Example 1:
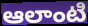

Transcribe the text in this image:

ఆలాంటి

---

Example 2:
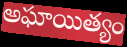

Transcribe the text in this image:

అఘాయిత్యం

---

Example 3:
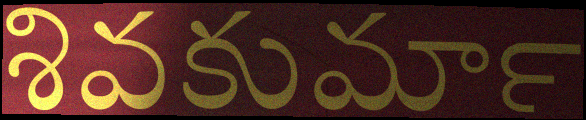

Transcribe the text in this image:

శివకుమార్‍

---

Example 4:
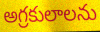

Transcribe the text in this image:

అగ్రకులాలను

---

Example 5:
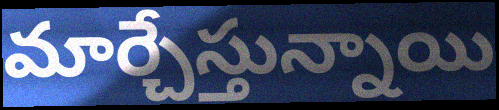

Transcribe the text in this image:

మార్చేస్తున్నాయి